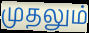
முதலும்